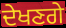
ਦੇਖਣਗੇ